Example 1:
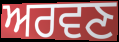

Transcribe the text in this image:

ਅਰਵਣ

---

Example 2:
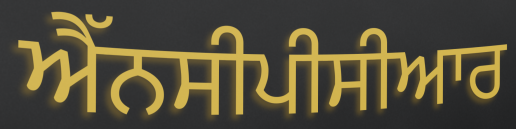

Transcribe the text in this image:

ਐੱਨਸੀਪੀਸੀਆਰ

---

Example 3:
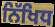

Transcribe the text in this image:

ਨਿੱਖਿਧ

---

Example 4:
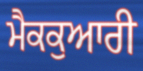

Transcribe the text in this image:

ਮੈਕਕੁਆਰੀ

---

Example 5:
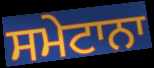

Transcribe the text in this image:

ਸਮੇਟਾਨਾ